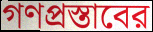
গণপ্রস্তাবের